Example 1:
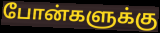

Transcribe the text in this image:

போன்களுக்கு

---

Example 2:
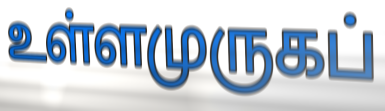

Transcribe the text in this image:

உள்ளமுருகப்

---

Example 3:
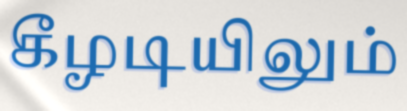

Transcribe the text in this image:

கீழடியிலும்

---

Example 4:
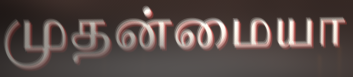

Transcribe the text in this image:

முதன்மையா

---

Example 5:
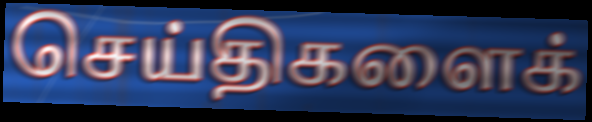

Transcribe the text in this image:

செய்திகளைக்